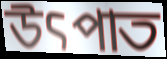
উৎপাত